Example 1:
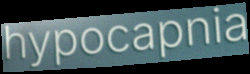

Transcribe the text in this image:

hypocapnia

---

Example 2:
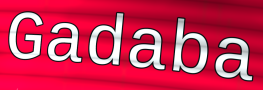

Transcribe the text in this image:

Gadaba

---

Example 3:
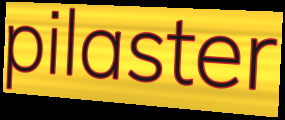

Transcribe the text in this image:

pilaster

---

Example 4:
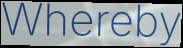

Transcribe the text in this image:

Whereby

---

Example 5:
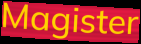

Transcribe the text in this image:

Magister